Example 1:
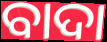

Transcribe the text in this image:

ବାଦା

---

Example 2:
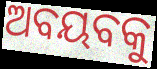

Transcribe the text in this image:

ଅବୟବକୁ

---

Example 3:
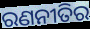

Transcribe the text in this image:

ରଣନୀତିର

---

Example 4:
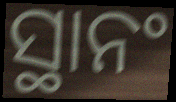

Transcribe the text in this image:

ସ୍ଥାନଂ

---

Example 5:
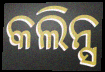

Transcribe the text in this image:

କଲିନ୍ସ